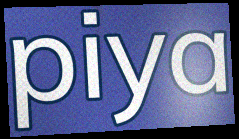
piya